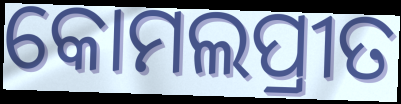
କୋମଲପ୍ରୀତ